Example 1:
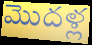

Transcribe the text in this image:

మొదళ్ల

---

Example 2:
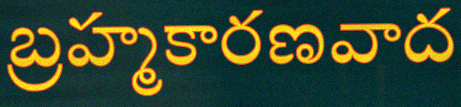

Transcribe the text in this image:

బ్రహ్మకారణవాద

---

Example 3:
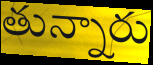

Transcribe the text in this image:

తున్నారు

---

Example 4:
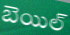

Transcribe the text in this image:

బెయిల్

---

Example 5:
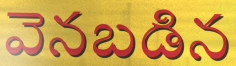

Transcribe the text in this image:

వెనబడిన